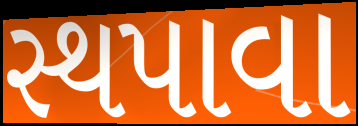
સ્થપાવા